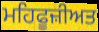
ਮਹਿਫੂਜ਼ੀਅਤ